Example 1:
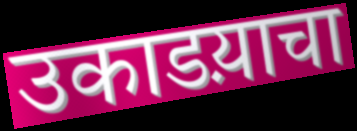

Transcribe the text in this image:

उकाडय़ाचा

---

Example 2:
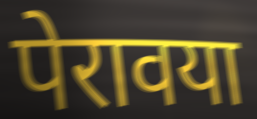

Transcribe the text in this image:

पेरावया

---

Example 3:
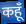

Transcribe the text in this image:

कहूँ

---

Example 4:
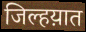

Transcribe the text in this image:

जिल्हय़ात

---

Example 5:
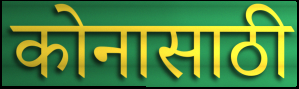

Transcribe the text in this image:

कोनासाठी